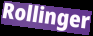
Rollinger